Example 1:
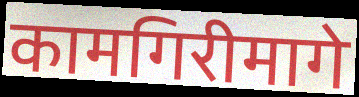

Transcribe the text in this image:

कामगिरीमागे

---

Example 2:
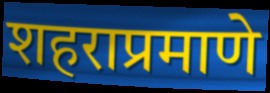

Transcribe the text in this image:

शहराप्रमाणे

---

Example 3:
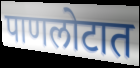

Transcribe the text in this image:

पाणलोटात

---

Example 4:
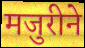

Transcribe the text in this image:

मजुरीने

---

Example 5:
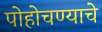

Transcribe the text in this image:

पोहोचण्याचे